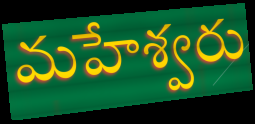
మహేశ్వరు